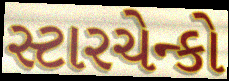
સ્ટારચેન્કો